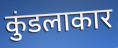
कुंडलाकार